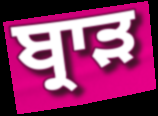
ਬ੍ਰਾੜ